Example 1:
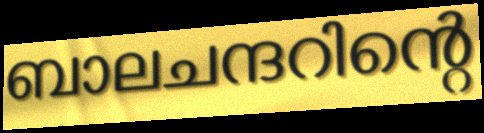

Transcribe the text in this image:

ബാലചന്ദറിന്റെ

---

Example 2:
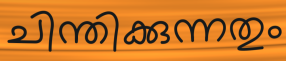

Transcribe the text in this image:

ചിന്തിക്കുന്നതും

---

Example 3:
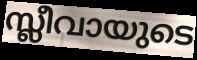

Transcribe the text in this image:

സ്ലീവായുടെ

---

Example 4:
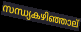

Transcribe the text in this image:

സന്ധ്യകഴിഞ്ഞാല്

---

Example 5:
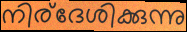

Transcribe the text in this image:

നിര്ദേശിക്കുന്നു